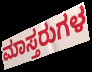
ಮಾಸ್ತರುಗಳ